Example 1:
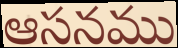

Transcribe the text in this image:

ఆసనము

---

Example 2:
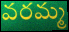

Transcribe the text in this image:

వరమ్మ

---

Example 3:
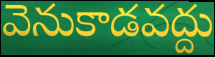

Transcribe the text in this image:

వెనుకాడవద్దు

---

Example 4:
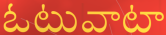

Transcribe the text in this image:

ఓటువాటా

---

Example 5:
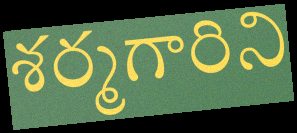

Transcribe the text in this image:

శర్మగారిని